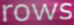
rows